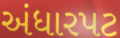
અંધારપટ